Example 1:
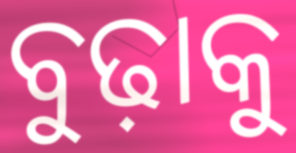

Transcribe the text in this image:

ବୁଢ଼ାକୁ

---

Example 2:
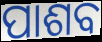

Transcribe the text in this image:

ପାଶବ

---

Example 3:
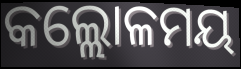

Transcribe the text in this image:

କଲ୍ଲୋଳମୟ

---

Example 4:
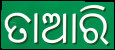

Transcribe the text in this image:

ତାଆରି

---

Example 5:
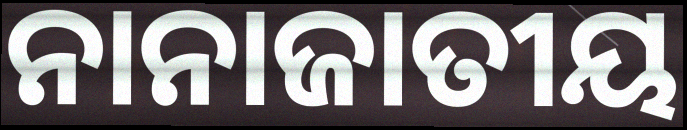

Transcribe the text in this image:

ନାନାଜାତୀୟ